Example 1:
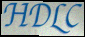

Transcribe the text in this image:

HDLC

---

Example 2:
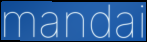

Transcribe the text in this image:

mandai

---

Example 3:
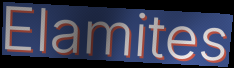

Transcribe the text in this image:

Elamites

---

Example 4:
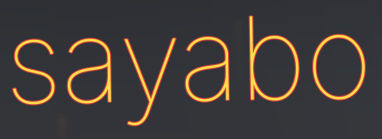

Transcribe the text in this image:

sayabo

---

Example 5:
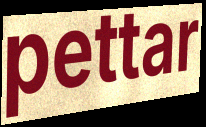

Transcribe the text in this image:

pettar